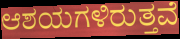
ಆಶಯಗಳಿರುತ್ತವೆ